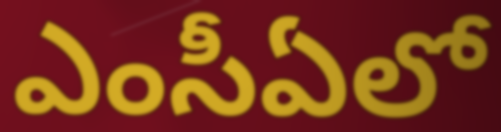
ఎంసీఏలో